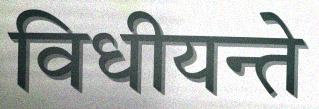
विधीयन्ते